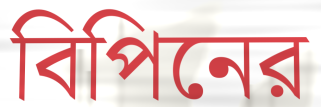
বিপিনের